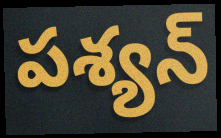
పశ్యన్